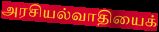
அரசியல்வாதியைக்